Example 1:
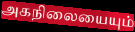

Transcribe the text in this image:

அகநிலையையும்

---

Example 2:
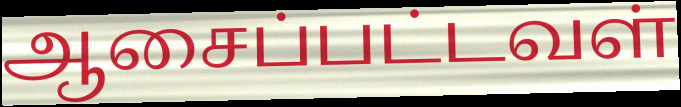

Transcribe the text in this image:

ஆசைப்பட்டவள்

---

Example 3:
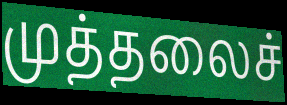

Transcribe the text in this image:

முத்தலைச்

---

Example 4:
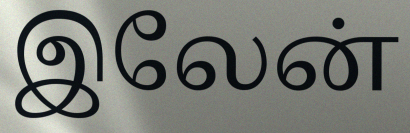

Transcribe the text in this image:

இலேன்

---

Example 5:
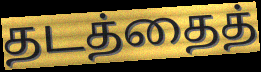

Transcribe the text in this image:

தடத்தைத்